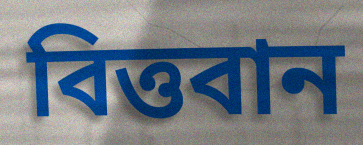
বিত্তবান